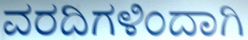
ವರದಿಗಳಿಂದಾಗಿ